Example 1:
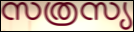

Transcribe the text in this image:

സത്രസ്യ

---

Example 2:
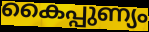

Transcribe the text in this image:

കൈപ്പുണ്യം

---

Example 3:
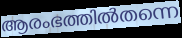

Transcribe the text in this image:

ആരംഭത്തിൽതന്നെ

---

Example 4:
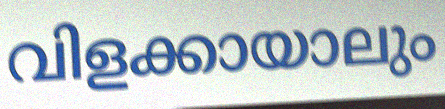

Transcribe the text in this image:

വിളക്കായാലും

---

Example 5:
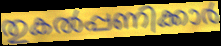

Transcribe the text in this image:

തുകൽപ്പണിക്കാർ